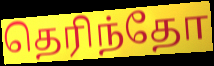
தெரிந்தோ